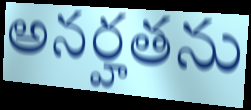
అనర్హతను